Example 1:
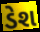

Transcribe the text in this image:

ડેશ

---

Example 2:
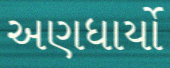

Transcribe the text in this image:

અણધાર્યો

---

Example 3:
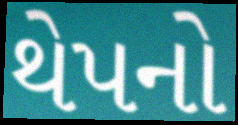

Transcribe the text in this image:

થેપનો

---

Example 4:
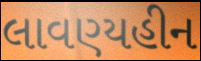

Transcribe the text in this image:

લાવણ્યહીન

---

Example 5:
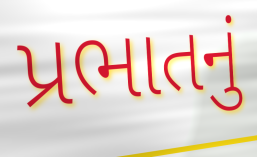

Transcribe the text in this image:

પ્રભાતનું